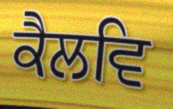
ਕੈਲਵਿ